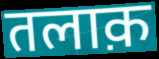
तलाक़